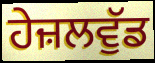
ਹੇਜ਼ਲਵੁੱਡ